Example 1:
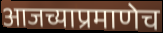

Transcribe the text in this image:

आजच्याप्रमाणेच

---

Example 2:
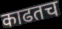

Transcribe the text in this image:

काढतच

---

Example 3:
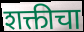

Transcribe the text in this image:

शक्तीचा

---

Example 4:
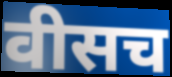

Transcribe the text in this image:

वीसच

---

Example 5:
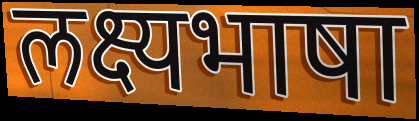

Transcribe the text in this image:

लक्ष्यभाषा